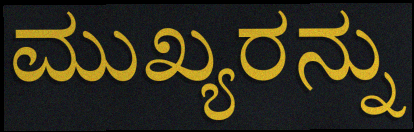
ಮುಖ್ಯರನ್ನು